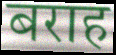
बराह